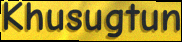
Khusugtun